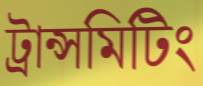
ট্রান্সমিটিং